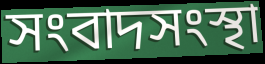
সংবাদসংস্থা